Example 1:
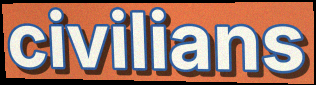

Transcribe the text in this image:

civilians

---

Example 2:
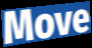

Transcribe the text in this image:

Move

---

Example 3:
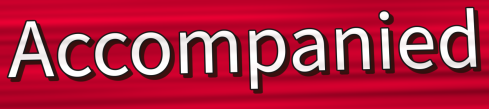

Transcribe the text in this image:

Accompanied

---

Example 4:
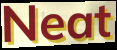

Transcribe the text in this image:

Neat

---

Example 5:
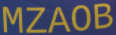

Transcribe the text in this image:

MZAOB